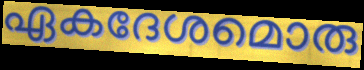
ഏകദേശമൊരു